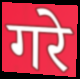
गरे